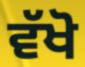
ਵੱਖੋ